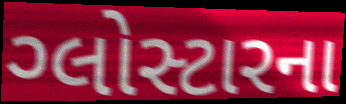
ગ્લોસ્ટારના